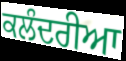
ਕਲੰਦਰੀਆ